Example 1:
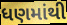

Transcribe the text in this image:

ધણમાંથી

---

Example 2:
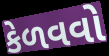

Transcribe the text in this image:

કેળવવો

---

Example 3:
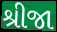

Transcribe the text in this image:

શ્રીજા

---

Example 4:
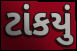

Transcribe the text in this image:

ટાંકયું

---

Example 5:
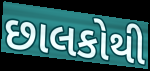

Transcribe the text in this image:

છાલકોથી